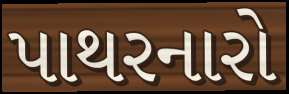
પાથરનારો